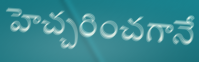
హెచ్చరించగానే